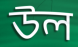
উল